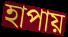
হাপায়